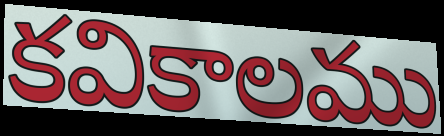
కవికాలము